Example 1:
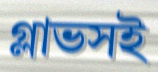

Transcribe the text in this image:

গ্লাভসই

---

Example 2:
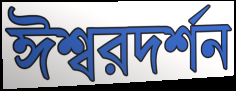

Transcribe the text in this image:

ঈশ্বরদর্শন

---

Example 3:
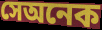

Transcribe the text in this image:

সেঅনেক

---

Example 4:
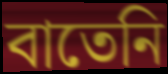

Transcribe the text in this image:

বাতেনি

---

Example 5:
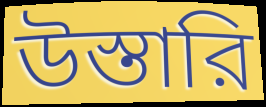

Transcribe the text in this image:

উস্তারি